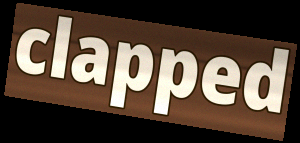
clapped